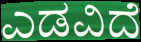
ಎಡವಿದೆ